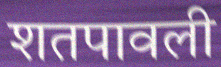
शतपावली